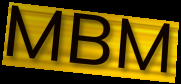
MBM